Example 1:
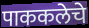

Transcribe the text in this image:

पाककलेचे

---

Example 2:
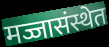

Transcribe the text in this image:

मज्जासंस्थेत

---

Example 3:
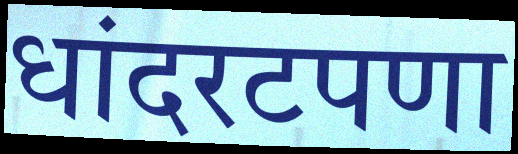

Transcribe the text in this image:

धांदरटपणा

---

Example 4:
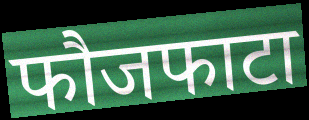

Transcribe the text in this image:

फौजफाटा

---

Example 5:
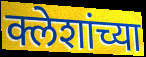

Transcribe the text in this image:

क्लेशांच्या